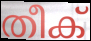
തീക്